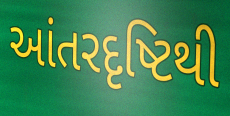
આંતરદૃષ્ટિથી